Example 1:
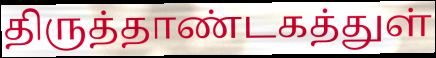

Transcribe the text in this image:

திருத்தாண்டகத்துள்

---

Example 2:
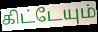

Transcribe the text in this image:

கிட்டேயும்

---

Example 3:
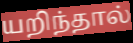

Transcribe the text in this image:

யறிந்தால்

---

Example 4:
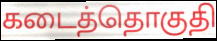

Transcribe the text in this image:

கடைத்தொகுதி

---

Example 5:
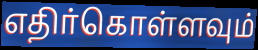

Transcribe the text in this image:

எதிர்கொள்ளவும்